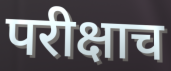
परीक्षाच